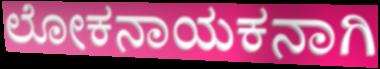
ಲೋಕನಾಯಕನಾಗಿ